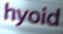
hyoid